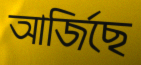
আৰ্জিছে